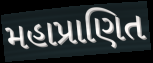
મહાપ્રાણિત